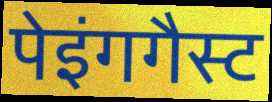
पेइंगगैस्ट